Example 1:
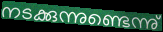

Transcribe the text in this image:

നടക്കുന്നുണ്ടെന്നു്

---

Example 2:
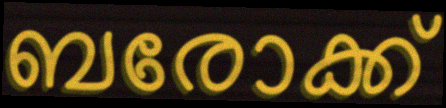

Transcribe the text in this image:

ബരോക്ക്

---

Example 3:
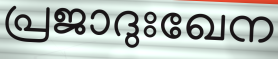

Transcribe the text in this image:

പ്രജാദുഃഖേന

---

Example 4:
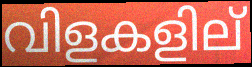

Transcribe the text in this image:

വിളകളില്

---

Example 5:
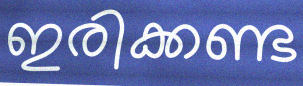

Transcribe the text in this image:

ഇരിക്കണ്ട